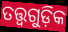
ତତ୍ତ୍ବଗୁଡ଼ିକ